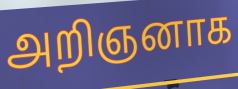
அறிஞனாக